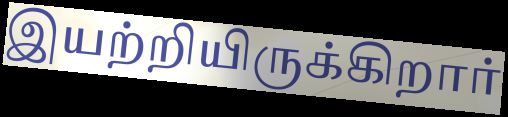
இயற்றியிருக்கிறார்